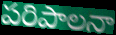
పరిపాలనా